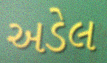
અડેલ